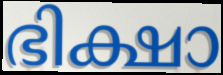
ഭിക്ഷാ